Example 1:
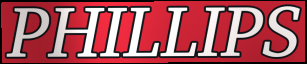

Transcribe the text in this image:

PHILLIPS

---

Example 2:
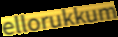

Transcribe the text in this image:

ellorukkum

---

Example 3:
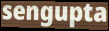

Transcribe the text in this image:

sengupta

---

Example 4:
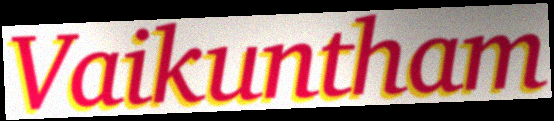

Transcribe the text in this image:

Vaikuntham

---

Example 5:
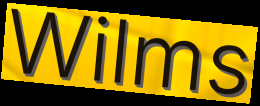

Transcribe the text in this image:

Wilms